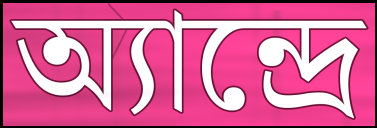
অ্যান্দ্রে